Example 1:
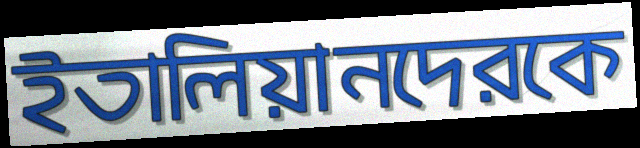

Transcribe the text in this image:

ইতালিয়ানদেরকে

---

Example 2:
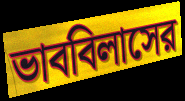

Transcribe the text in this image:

ভাববিলাসের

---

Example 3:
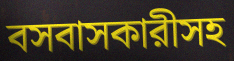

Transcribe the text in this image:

বসবাসকারীসহ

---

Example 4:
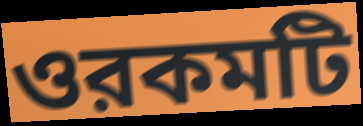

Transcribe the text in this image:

ওরকমটি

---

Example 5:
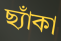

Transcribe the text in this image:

ছ্যাঁকা